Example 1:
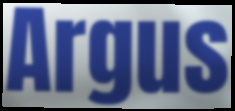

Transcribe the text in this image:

Argus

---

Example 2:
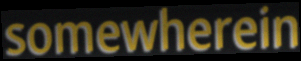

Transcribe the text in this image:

somewherein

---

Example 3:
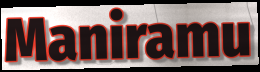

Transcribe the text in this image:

Maniramu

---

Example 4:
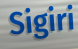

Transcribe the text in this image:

Sigiri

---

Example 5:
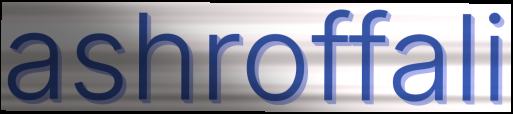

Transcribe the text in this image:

ashroffali